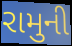
રામુની